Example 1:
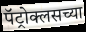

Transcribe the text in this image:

पॅट्रोक्लसच्या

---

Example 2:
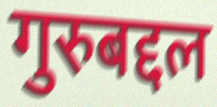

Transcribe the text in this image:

गुरुबद्दल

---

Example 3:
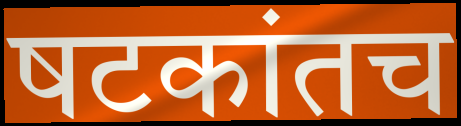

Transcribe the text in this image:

षटकांतच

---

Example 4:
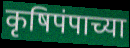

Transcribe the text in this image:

कृषिपंपाच्या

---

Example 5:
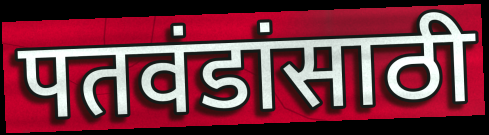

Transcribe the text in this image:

पतवंडांसाठी